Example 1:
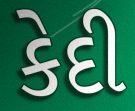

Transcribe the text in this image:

કેદી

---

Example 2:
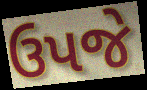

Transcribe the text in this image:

ઉપજે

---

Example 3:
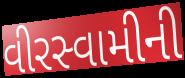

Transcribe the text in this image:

વીરસ્વામીની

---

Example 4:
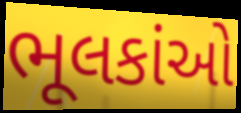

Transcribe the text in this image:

ભૂલકાંઓ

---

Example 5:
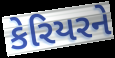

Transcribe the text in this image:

કેરિયરને